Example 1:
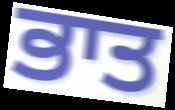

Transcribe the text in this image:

ਭਾਤ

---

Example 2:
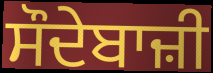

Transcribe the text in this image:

ਸੌਦੇਬਾਜ਼ੀ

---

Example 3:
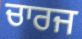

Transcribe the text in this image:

ਚਾਰਜ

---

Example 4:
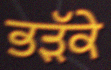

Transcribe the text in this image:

ਭੜੱਕੇ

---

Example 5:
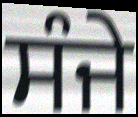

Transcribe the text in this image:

ਸੰਜੇ